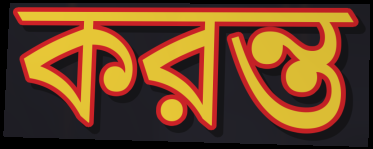
করন্ত